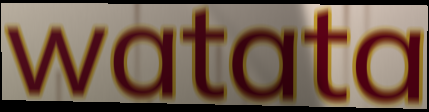
watata